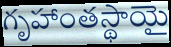
గృహాంతస్థాయై